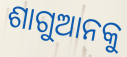
ଶାଗୁଆନକୁ